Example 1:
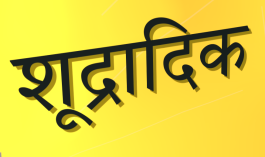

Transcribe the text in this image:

शूद्रादिक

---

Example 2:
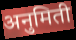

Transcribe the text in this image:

अनुमिती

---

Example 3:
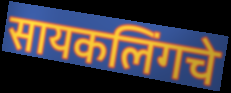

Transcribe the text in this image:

सायकलिंगचे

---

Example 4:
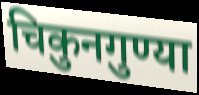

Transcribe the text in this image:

चिकुनगुण्या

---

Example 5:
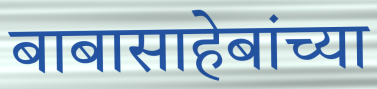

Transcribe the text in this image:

बाबासाहेबांच्‍या